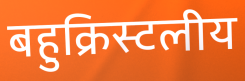
बहुक्रिस्टलीय